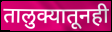
तालुक्यातूनही